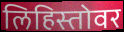
लिहिस्तोवर